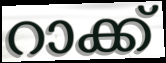
റാക്ക്